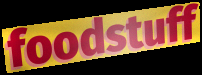
foodstuff